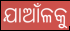
ଯାଆଁଳକୁ